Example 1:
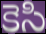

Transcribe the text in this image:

కెసి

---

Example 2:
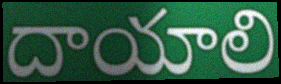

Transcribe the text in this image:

దాయాలి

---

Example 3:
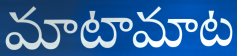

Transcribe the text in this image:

మాటామాట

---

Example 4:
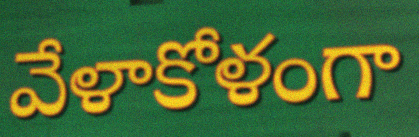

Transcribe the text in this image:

వేళాకోళంగా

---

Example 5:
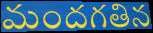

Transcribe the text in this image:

మందగతిన